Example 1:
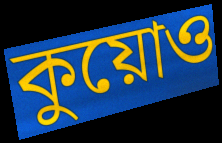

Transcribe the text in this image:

কুয়োও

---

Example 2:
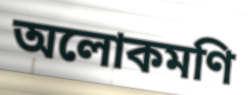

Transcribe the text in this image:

অলোকমণি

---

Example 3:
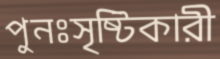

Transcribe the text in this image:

পুনঃসৃষ্টিকারী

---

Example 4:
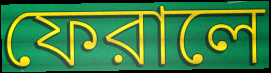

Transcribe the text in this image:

ফেরালে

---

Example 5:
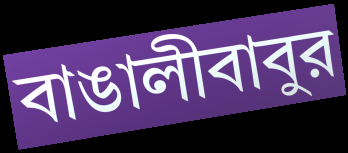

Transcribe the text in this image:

বাঙালীবাবুর